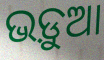
ଭଡ଼ୁଆ